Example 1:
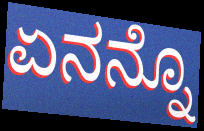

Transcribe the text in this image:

ಏನನ್ನೊ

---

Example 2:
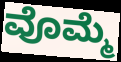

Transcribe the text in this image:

ವೊಮ್ಮೆ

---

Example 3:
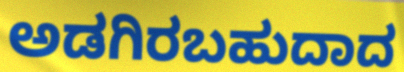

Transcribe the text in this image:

ಅಡಗಿರಬಹುದಾದ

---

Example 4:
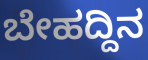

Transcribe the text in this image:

ಬೇಹದ್ದಿನ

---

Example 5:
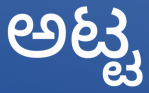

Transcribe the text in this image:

ಅಟ್ಟ